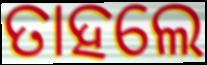
ତାହଲେ